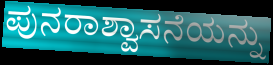
ಪುನರಾಶ್ವಾಸನೆಯನ್ನು